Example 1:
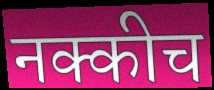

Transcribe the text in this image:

नक्कीच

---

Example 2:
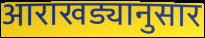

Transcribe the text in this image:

आराखड्यानुसार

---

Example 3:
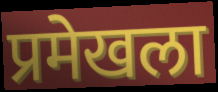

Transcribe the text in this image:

प्रमेखला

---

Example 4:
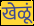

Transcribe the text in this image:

खेळूं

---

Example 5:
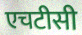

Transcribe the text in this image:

एचटीसी